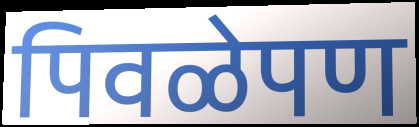
पिवळेपण